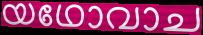
യഥോവാച